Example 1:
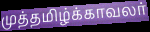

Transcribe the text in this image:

முத்தமிழ்க்காவலர்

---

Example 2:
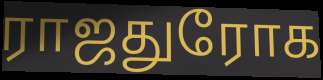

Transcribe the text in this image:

ராஜதுரோக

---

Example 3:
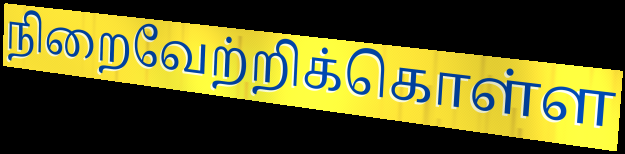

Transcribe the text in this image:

நிறைவேற்றிக்கொள்ள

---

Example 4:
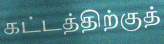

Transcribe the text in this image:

கட்டத்திற்குத்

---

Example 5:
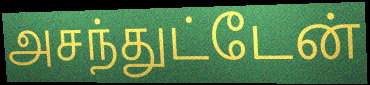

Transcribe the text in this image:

அசந்துட்டேன்